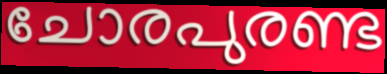
ചോരപുരണ്ട